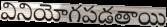
వినియోగపడతాయి